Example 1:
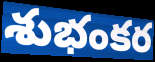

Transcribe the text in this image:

శుభంకర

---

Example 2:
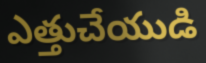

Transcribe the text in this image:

ఎత్తుచేయుడి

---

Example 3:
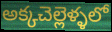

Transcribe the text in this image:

అక్కచెల్లెళ్ళలో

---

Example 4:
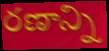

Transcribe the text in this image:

రణాన్ని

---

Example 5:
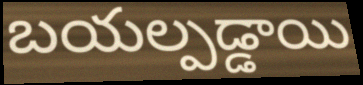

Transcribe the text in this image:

బయల్పడ్డాయి